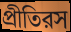
প্রীতিরস